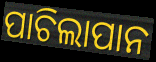
ପାଚିଲାପାନ